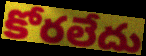
కోరలేదు